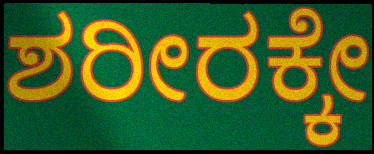
ಶರೀರಕ್ಕೇ